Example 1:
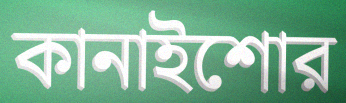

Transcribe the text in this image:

কানাইশোর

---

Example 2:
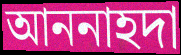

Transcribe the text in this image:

আননাহদা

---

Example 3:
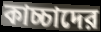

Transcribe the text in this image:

কাচ্চাদের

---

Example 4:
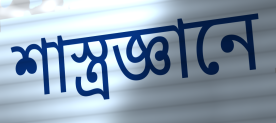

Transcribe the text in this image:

শাস্ত্রজ্ঞানে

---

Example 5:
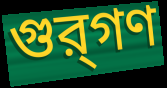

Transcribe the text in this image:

গুর্‌গণ